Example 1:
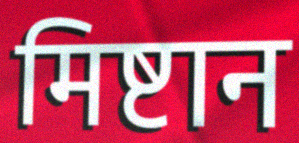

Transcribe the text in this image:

मिष्टान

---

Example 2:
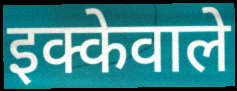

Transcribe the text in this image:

इक्केवाले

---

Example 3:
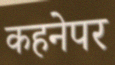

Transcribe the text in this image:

कहनेपर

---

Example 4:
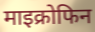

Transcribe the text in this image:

माइक्रोफिन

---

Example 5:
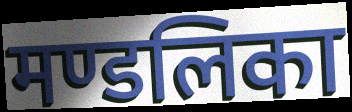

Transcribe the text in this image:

मण्डलिका